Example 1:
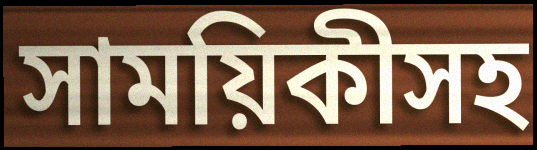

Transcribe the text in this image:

সাময়িকীসহ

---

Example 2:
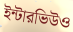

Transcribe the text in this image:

ইন্টারভিউও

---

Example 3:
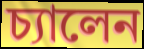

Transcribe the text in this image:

চ্যালেন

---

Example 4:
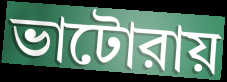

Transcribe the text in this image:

ভাটোরায়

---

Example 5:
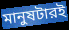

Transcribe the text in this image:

মানুষটারই